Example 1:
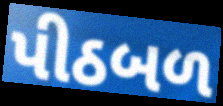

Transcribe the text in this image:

પીઠબળ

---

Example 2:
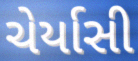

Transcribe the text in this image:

ચેર્યાસી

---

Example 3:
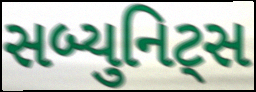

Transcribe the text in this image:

સબ્યુનિટ્સ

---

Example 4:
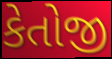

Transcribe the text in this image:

કેતોજી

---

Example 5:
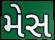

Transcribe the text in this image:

મેસ